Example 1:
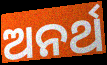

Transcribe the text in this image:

ଅନର୍ଥ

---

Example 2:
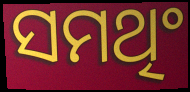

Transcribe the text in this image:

ସମଥିଂ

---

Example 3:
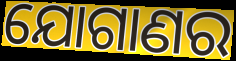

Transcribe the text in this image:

ଯୋଗାଣର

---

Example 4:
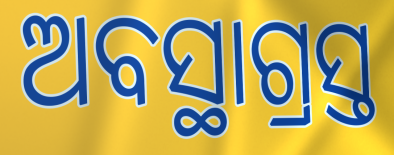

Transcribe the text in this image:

ଅବସ୍ଥାଗ୍ରସ୍ତ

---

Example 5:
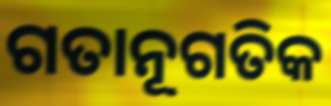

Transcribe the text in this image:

ଗତାନୂଗତିକ